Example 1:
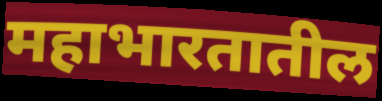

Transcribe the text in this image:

महाभारतातील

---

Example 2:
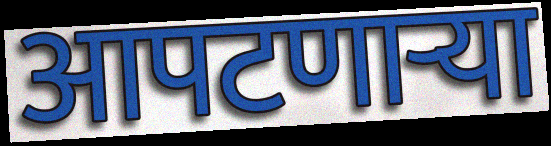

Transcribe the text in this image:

आपटणाऱ्या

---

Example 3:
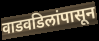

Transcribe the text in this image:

वाडवडिलांपासून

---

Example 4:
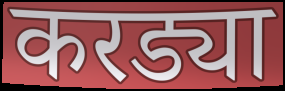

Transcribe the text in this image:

करड्या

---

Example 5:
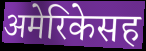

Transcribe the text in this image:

अमेरिकेसह